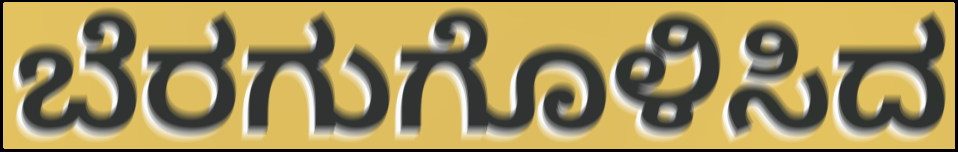
ಬೆರಗುಗೊಳಿಸಿದ